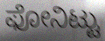
ಫೋನಿಟ್ಟು